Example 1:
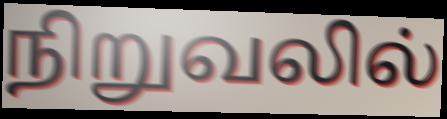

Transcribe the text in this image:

நிறுவலில்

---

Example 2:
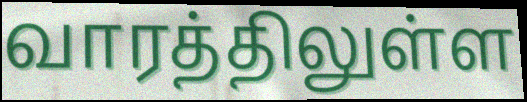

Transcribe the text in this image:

வாரத்திலுள்ள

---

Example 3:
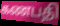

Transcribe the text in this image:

கணபதி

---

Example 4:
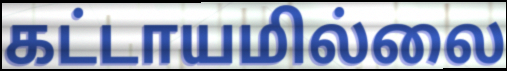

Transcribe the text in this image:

கட்டாயமில்லை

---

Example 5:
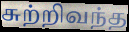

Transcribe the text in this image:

சுற்றிவந்த